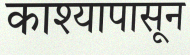
काश्यापासून